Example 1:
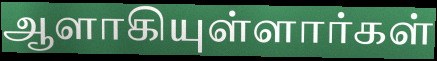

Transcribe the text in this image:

ஆளாகியுள்ளார்கள்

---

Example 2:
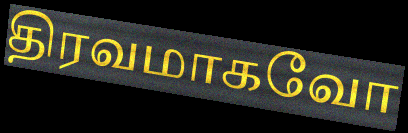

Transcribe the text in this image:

திரவமாகவோ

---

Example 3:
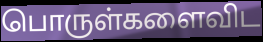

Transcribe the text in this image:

பொருள்களைவிட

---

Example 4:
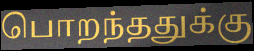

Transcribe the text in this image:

பொறந்ததுக்கு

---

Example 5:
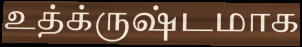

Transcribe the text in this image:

உத்க்ருஷ்டமாக